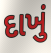
દાખું